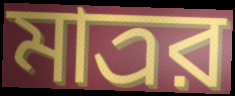
মাত্রর